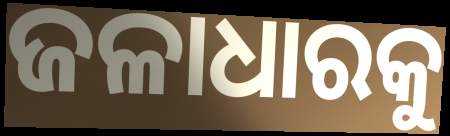
ଜଳାଧାରକୁ